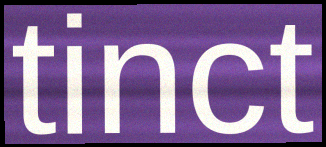
tinct